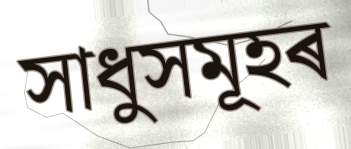
সাধুসমূহৰ